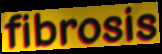
fibrosis